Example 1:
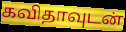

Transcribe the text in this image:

கவிதாவுடன்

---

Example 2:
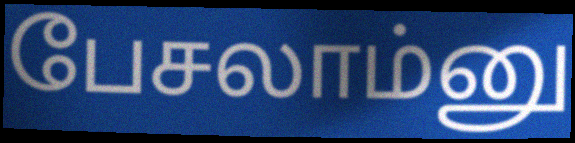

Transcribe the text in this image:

பேசலாம்னு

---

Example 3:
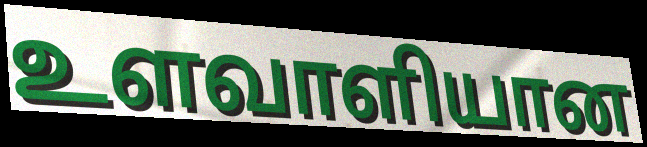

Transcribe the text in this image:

உளவாளியான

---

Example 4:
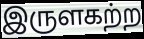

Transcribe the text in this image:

இருளகற்ற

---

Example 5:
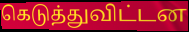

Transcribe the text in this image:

கெடுத்துவிட்டன